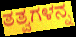
ತತ್ವಗಳನ್ನ